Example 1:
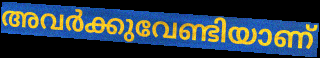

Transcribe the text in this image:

അവർക്കുവേണ്ടിയാണ്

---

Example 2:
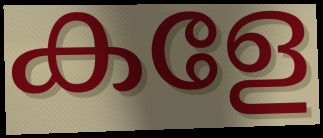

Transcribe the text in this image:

കളേ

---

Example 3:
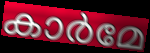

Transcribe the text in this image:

കാർമേ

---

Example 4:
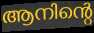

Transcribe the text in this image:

ആനിന്റെ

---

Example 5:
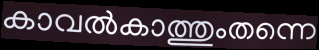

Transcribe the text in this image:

കാവൽകാത്തുംതന്നെ